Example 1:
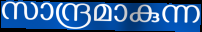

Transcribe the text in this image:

സാന്ദ്രമാകുന്ന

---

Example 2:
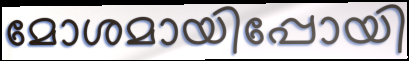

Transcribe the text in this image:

മോശമായിപ്പോയി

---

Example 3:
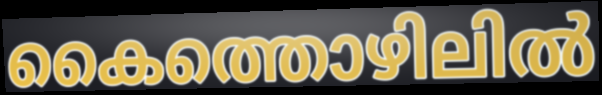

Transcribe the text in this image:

കൈത്തൊഴിലിൽ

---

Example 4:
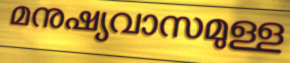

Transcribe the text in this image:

മനുഷ്യവാസമുള്ള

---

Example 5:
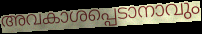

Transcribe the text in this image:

അവകാശപ്പെടാനാവും